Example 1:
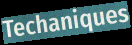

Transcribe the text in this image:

Techaniques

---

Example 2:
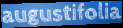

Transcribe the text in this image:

augustifolia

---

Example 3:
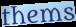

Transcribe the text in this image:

thems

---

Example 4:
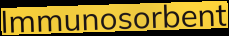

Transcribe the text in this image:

Immunosorbent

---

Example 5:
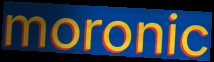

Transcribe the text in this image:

moronic